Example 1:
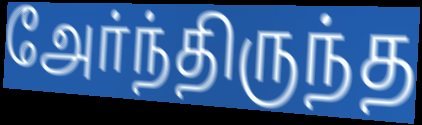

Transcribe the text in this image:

அேர்ந்திருந்த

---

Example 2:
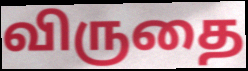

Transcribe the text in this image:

விருதை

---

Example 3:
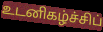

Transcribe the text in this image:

உடனிகழ்ச்சிப்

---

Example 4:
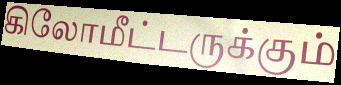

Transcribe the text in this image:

கிலோமீட்டருக்கும்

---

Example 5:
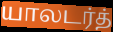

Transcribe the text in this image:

யாலடர்த்